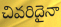
చివరిదైనా